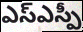
ఎస్ఎస్పీ